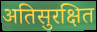
अतिसुरक्षित